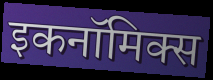
इकनॉमिक्स